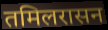
तमिलरासन